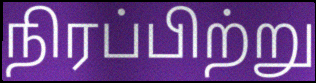
நிரப்பிற்று